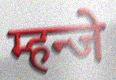
म्हन्जे